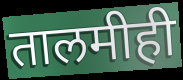
तालमीही